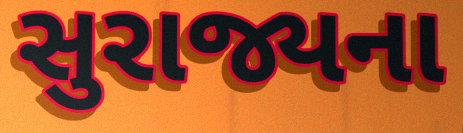
સુરાજ્યના